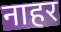
नाहर